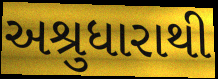
અશ્રુધારાથી